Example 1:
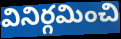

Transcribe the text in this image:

వినిర్గమించి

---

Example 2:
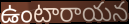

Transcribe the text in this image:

ఉంటారాయన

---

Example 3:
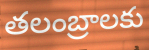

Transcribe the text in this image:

తలంబ్రాలకు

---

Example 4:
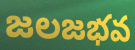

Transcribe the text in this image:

జలజభవ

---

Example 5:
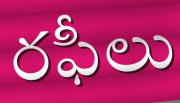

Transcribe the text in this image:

రఫీలు